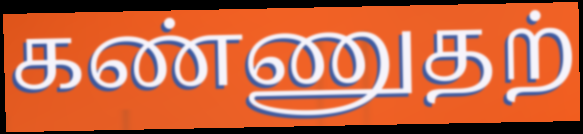
கண்ணுதற்